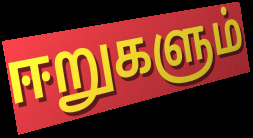
ஈறுகளும்